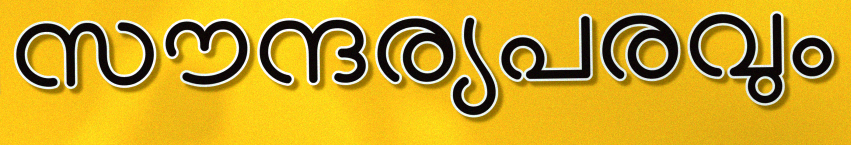
സൗന്ദര്യപരവും